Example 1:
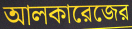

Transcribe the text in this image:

আলকারেজের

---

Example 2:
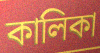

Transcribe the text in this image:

কালিকা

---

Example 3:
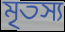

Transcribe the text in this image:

মৃতস্য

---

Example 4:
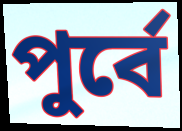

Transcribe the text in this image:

পুর্বে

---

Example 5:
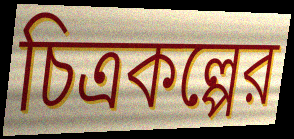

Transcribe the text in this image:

চিত্রকল্পের